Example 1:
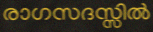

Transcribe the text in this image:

രാഗസദസ്സിൽ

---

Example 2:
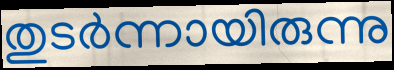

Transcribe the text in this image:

തുടർന്നായിരുന്നു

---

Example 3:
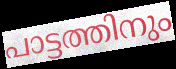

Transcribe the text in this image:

പാട്ടത്തിനും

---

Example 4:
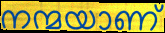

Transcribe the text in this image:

നന്മയാണ്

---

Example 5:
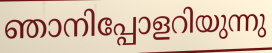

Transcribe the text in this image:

ഞാനിപ്പോളറിയുന്നു